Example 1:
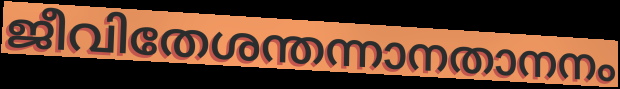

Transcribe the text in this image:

ജീവിതേശന്തന്നാനതാനനം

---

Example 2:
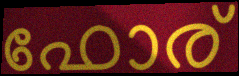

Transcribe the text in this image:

ഫോര്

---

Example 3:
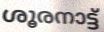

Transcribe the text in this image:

ശൂരനാട്ട്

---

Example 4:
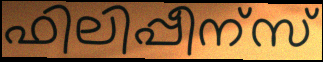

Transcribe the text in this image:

ഫിലിപ്പീന്സ്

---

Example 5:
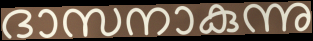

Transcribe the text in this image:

ദാസനാകുന്നു